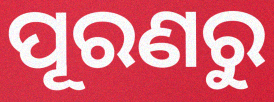
ପୂରଣରୁ